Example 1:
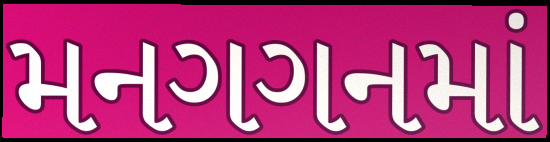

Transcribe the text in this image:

મનગગનમાં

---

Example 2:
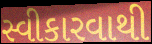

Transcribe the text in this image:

સ્વીકારવાથી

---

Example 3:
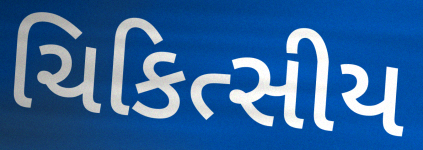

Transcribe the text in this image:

ચિકિત્સીય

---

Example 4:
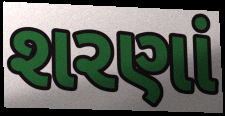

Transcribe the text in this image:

શરણાં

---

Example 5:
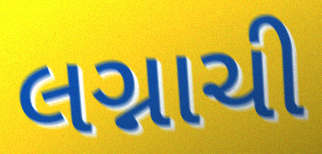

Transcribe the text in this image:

લગ્નાચી